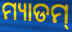
ମ୍ୟାଡମ୍